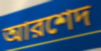
আরশেদ